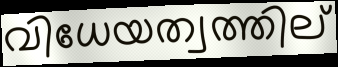
വിധേയത്വത്തില്